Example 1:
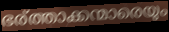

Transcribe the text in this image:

ഭര്ത്താക്കന്മാരെയും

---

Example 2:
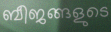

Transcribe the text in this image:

ബീജങ്ങളുടെ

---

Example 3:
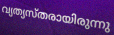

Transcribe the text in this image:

വ്യത്യസ്തരായിരുന്നു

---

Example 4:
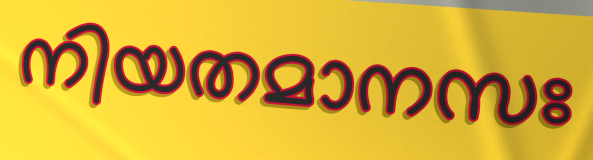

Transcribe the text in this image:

നിയതമാനസഃ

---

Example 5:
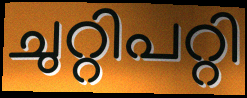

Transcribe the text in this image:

ചുറ്റിപറ്റി